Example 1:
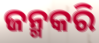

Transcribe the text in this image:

ଜନ୍ମକରି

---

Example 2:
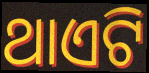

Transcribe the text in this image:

ଥାଏଟି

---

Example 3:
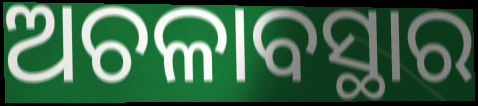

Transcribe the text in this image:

ଅଚଳାବସ୍ଥାର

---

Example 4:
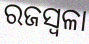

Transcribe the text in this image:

ରଜସ୍ବଳା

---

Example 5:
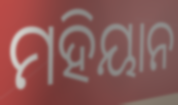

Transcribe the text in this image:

ମହିୟାନ